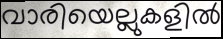
വാരിയെല്ലുകളിൽ